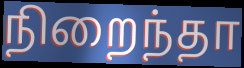
நிறைந்தா